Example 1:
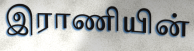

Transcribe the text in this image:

இராணியின்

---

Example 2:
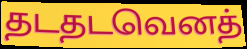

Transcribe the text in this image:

தடதடவெனத்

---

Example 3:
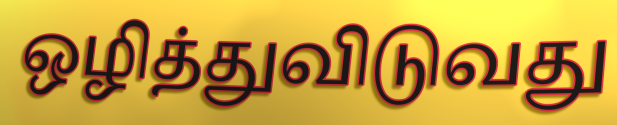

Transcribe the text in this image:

ஒழித்துவிடுவது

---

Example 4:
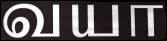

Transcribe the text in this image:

வயா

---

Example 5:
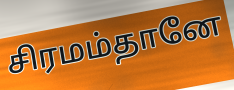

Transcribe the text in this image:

சிரமம்தானே